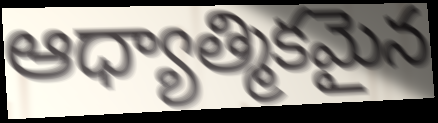
ఆధ్యాత్మికమైన